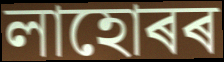
লাহোৰৰ